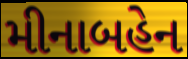
મીનાબહેન